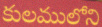
కులములోని